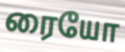
ரையோ